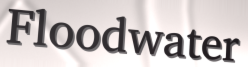
Floodwater